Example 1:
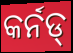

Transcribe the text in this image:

କର୍ନଡ୍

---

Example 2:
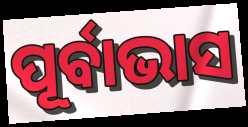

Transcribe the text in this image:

ପୂର୍ବାଭାସ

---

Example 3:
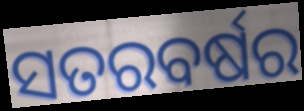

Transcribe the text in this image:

ସତରବର୍ଷର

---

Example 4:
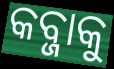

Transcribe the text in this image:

କବ୍ଜାକୁ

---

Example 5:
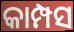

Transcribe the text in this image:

କାମ୍ପସ